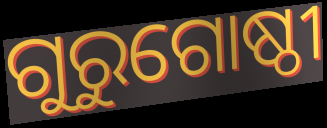
ଗୁରୁଗୋଷ୍ଠୀ